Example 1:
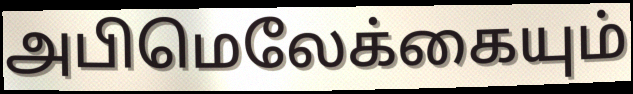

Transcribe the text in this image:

அபிமெலேக்கையும்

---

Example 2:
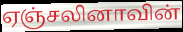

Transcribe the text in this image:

ஏஞ்சலினாவின்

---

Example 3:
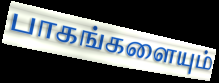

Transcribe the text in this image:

பாகங்களையும்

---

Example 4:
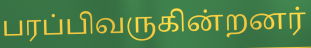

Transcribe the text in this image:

பரப்பிவருகின்றனர்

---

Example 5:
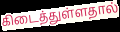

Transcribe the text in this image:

கிடைத்துள்ளதால்